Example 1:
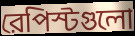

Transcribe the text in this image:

রেপিস্টগুলো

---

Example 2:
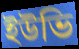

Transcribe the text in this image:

ইউভি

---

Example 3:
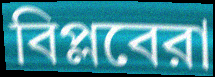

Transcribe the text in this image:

বিপ্লবেরা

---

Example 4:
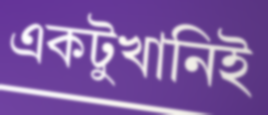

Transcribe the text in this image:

একটুখানিই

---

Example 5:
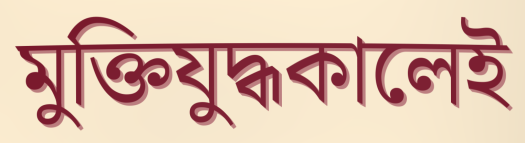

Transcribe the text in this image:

মুক্তিযুদ্ধকালেই